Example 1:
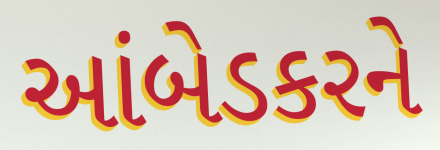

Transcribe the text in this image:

આંબેડકરને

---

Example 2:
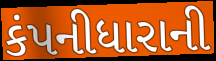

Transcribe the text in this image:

કંપનીધારાની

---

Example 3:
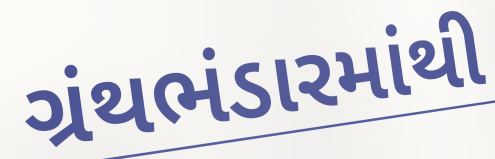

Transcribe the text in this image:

ગ્રંથભંડારમાંથી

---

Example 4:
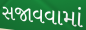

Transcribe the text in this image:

સજાવવામાં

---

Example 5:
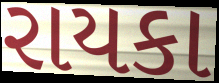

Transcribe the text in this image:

રાયકા